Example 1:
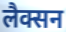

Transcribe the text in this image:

लैक्सन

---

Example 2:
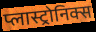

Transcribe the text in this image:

प्लास्ट्रोनिक्स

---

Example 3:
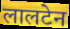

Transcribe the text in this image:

लालटेन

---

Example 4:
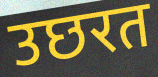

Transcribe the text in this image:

उछरत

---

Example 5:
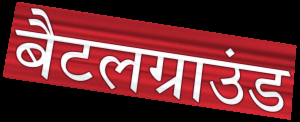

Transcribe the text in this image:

बैटलग्राउंड